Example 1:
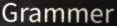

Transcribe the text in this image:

Grammer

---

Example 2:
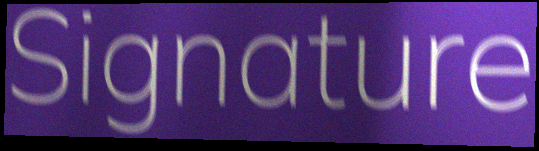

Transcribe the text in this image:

Signature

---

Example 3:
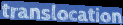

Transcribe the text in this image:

translocation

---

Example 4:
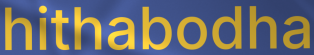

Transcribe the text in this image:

hithabodha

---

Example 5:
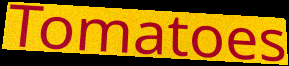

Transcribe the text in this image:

Tomatoes